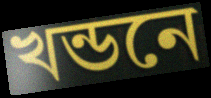
খন্ডনে